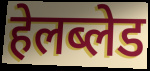
हेलब्लेड